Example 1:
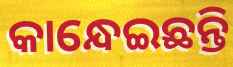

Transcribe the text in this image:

କାନ୍ଧେଇଛନ୍ତି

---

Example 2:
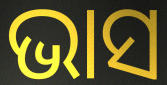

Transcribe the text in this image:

ଭାସ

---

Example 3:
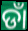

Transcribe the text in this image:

ଡାଁ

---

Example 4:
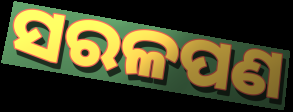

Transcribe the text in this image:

ସରଳପଣ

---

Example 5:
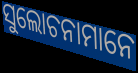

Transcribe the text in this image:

ସୁଲୋଚନାମାନେ